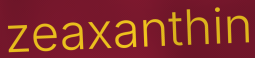
zeaxanthin